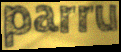
parru